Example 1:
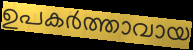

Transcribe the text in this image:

ഉപകർത്താവായ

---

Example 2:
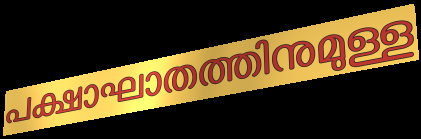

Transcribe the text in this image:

പക്ഷാഘാതത്തിനുമുള്ള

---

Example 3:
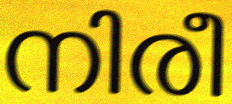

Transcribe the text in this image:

നിരീ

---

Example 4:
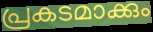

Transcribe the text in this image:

പ്രകടമാക്കും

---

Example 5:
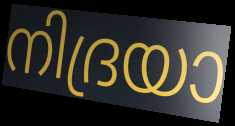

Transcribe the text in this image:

നിദ്രയാ